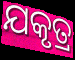
ଯକୃତ୍ର